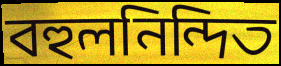
বহুলনিন্দিত